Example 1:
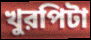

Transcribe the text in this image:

খুরপিটা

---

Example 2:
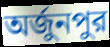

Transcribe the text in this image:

অর্জুনপুর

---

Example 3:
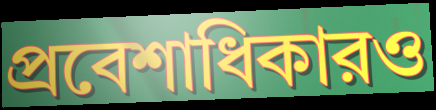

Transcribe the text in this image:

প্রবেশাধিকারও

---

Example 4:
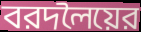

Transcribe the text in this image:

বরদলৈয়ের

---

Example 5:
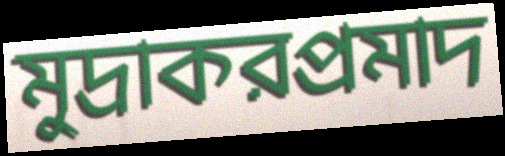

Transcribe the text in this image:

মুদ্রাকরপ্রমাদ